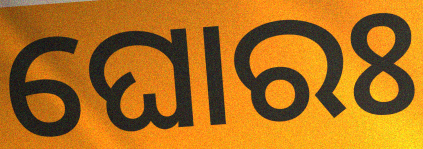
ଘୋରଃ